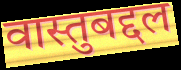
वास्तुबद्दल